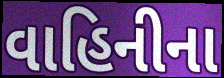
વાહિનીના